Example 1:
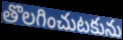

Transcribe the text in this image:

తొలగించుటకును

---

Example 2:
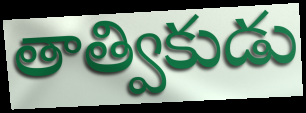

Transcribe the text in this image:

తాత్వికుడు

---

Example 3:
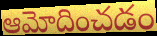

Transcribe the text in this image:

ఆమోదించడం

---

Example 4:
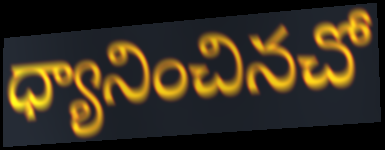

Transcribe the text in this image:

ధ్యానించినచో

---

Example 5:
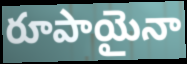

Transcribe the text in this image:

రూపాయైనా